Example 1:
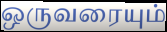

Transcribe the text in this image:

ஒருவரையும்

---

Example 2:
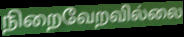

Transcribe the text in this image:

நிறைவேறவில்லை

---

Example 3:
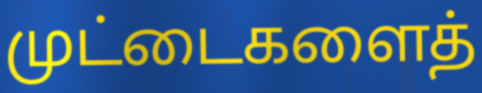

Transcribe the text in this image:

முட்டைகளைத்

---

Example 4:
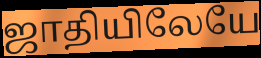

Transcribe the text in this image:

ஜாதியிலேயே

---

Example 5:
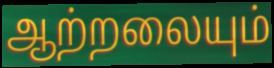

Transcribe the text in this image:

ஆற்றலையும்